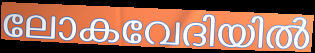
ലോകവേദിയിൽ